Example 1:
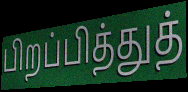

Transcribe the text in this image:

பிறப்பித்துத்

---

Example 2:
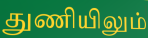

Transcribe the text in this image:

துணியிலும்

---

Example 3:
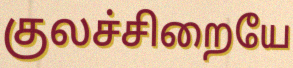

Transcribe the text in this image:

குலச்சிறையே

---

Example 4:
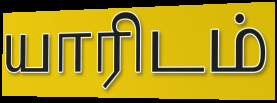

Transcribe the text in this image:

யாரிடம்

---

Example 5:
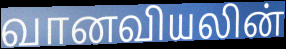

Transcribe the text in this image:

வானவியலின்